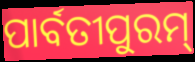
ପାର୍ବତୀପୁରମ୍